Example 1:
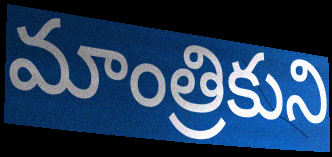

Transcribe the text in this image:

మాంత్రికుని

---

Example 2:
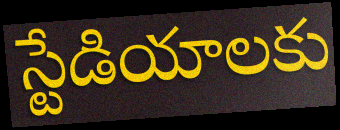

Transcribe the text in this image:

స్టేడియాలకు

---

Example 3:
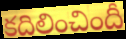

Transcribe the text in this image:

కదిలించిందీ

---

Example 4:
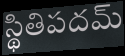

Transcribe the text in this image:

స్థితిపదమ్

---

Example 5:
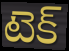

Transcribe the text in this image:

టెక్